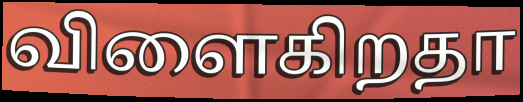
விளைகிறதா